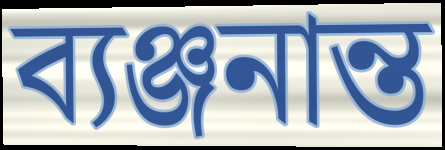
ব্যঞ্জনান্ত